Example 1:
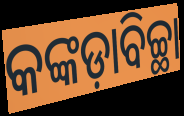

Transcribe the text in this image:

କଙ୍କଡ଼ାବିଚ୍ଛା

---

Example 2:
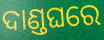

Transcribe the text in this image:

ଦାଣ୍ଡଘରେ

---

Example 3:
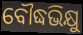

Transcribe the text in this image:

ବୌଦ୍ଧଭିକ୍ଷୁ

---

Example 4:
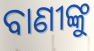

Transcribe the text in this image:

ବାଣୀଙ୍କୁ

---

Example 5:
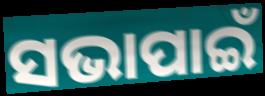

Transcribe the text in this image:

ସଭାପାଇଁ